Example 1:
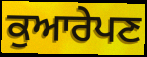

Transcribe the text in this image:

ਕੁਆਰੇਪਣ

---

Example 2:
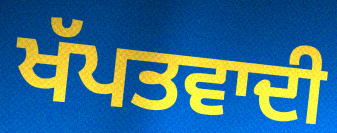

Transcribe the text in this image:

ਖੱਪਤਵਾਦੀ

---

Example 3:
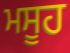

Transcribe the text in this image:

ਮਸੂਹ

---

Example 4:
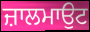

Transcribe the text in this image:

ਜ਼ਾਲਮਾਉਟ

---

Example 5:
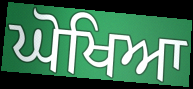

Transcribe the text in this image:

ਘੋਖਿਆ